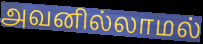
அவனில்லாமல்